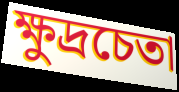
ক্ষুদ্রচেতা